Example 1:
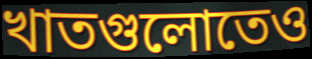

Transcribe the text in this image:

খাতগুলোতেও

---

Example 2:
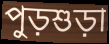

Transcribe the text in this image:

পুড়শুড়া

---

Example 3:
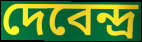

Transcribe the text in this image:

দেবেন্দ্র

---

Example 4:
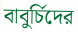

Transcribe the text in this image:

বাবুর্চিদের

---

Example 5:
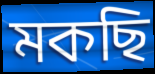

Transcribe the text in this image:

মকছি